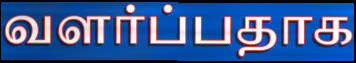
வளர்ப்பதாக